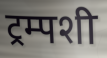
ट्रम्पशी